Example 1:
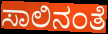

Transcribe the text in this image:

ಸಾಲಿನಂತೆ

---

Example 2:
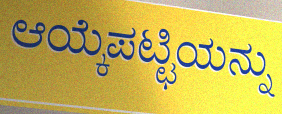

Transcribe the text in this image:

ಆಯ್ಕೆಪಟ್ಟಿಯನ್ನು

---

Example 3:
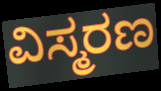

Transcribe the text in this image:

ವಿಸ್ಮರಣ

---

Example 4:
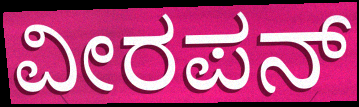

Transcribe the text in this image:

ವೀರಪನ್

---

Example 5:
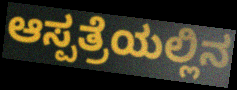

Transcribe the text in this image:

ಆಸ್ಪತ್ರೆಯಲ್ಲಿನ